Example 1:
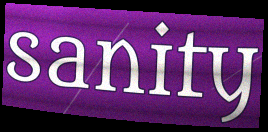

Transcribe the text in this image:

sanity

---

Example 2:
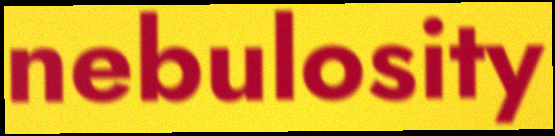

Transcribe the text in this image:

nebulosity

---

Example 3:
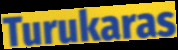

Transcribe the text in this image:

Turukaras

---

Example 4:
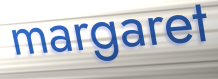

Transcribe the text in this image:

margaret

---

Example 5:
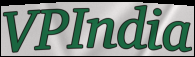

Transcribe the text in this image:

VPIndia